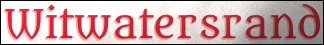
Witwatersrand